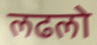
लढलो